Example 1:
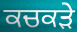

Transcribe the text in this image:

ਕਚਕੜੇ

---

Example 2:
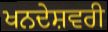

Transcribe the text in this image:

ਖਨਦੇਸ਼ਵਰੀ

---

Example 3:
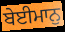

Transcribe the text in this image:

ਬੇਈਮਾਨੁ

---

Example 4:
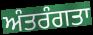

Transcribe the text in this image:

ਅੰਤਰੰਗਤਾ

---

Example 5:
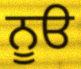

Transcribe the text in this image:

ਨੂੳ